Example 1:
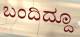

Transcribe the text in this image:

ಬಂದಿದ್ದೂ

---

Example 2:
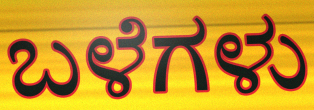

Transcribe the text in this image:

ಬಳೆಗಳು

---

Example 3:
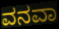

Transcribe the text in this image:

ವನವಾ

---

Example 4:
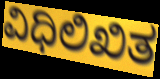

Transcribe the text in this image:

ವಿಧಿಲಿಖಿತ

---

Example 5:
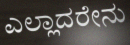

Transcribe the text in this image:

ಎಲ್ಲಾದರೇನು